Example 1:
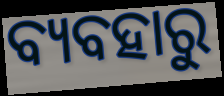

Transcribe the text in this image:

ବ୍ୟବହାରୁ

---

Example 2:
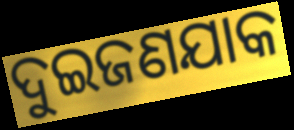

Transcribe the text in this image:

ଦୁଇଜଣଯାକ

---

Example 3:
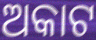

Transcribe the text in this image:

ଅକାଟ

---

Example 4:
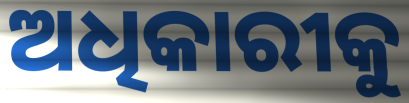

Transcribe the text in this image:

ଅଧିକାରୀକୁ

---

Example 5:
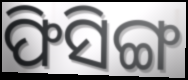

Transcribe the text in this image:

ଫିସିଙ୍ଗ